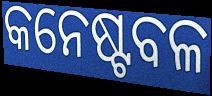
କନେଷ୍ଟବଳ